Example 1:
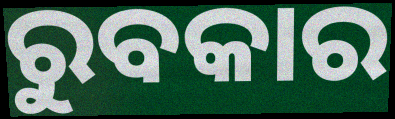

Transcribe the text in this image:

ରୁବକାର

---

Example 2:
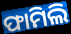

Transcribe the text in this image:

ଫାମିଲି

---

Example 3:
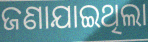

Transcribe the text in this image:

ଜଣାଯାଇଥିଲା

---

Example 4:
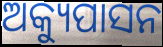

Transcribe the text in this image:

ଅକ୍ୟୁପାସନ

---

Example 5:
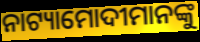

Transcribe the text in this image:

ନାଟ୍ୟାମୋଦୀମାନଙ୍କୁ